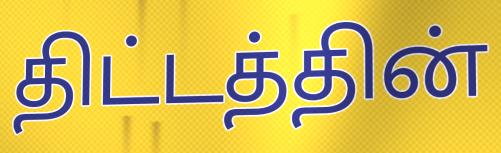
திட்டத்தின்